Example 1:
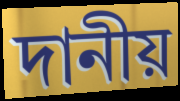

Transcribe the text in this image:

দানীয়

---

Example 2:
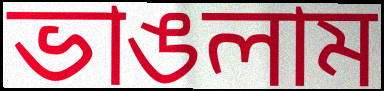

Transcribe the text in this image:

ভাঙলাম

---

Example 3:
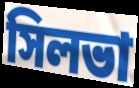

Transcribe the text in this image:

সিলভা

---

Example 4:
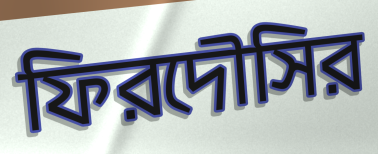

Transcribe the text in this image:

ফিরদৌসির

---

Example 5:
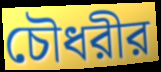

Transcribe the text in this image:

চৌধরীর